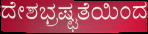
ದೇಶಭ್ರಷ್ಟತೆಯಿಂದ